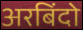
अरबिंदो